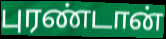
புரண்டான்